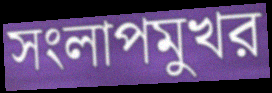
সংলাপমুখর